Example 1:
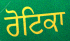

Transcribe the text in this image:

ਰੋਟਿਕਾ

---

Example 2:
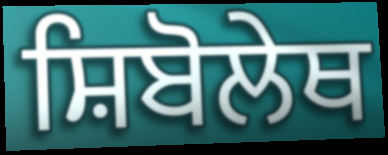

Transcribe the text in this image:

ਸ਼ਿਬੋਲੇਥ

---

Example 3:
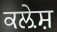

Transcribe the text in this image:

ਕਲ਼ੇਸ਼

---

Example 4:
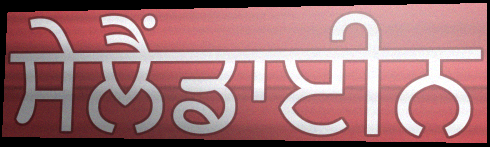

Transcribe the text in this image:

ਸੇਲੈਂਡਾਈਨ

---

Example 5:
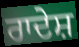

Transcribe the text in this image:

ਰਾਦੇਸ਼